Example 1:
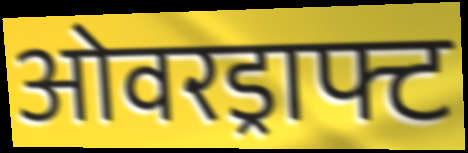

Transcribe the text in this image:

ओवरड्राफ्ट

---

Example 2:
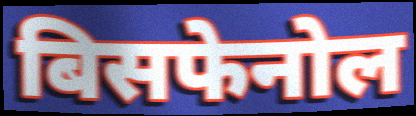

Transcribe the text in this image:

बिसफेनोल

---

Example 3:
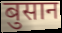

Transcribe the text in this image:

बुसान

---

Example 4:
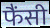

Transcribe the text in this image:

फैंसी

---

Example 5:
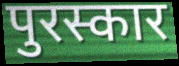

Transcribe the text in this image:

पुरस्कार